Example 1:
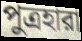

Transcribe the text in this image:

পুত্রহারা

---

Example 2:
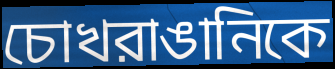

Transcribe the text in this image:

চোখরাঙানিকে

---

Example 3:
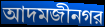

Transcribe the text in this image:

আদমজীনগর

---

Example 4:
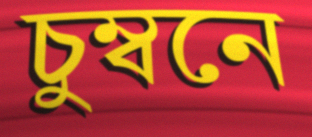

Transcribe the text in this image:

চুম্বনে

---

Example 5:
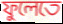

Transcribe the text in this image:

ফুলেতে